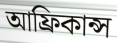
আফ্ৰিকান্স